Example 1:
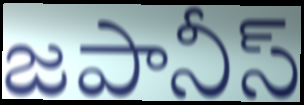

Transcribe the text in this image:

జపానీస్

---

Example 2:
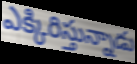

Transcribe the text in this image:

ఎక్కిరిస్తున్నాడు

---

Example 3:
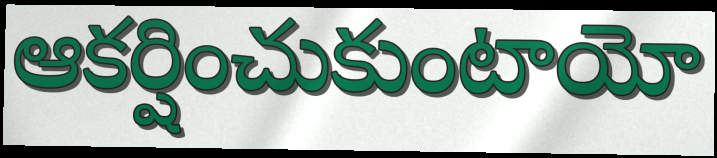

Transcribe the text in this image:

ఆకర్షించుకుంటాయో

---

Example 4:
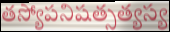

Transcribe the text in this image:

తస్యోపనిషత్సత్యస్య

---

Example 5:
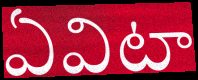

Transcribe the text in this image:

ఏవిటా